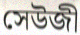
সেউজী